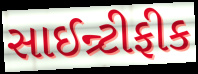
સાઈન્ર્ટીફીક